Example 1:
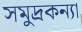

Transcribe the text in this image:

সমুদ্রকন্যা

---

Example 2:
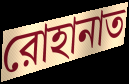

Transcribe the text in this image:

রোহানাত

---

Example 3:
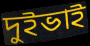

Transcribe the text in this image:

দুইভাই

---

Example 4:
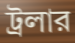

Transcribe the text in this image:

ট্রলার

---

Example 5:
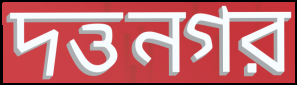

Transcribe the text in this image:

দত্তনগর